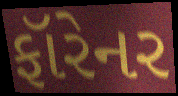
ફૉરેનર